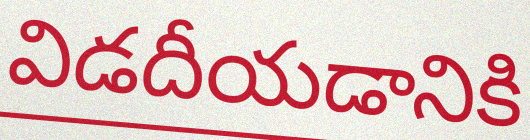
విడదీయడానికి